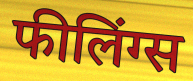
फीलिंग्स